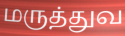
மருத்துவ